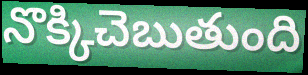
నొక్కిచెబుతుంది